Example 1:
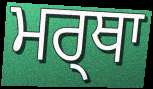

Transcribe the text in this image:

ਮਰ੍ਥਾ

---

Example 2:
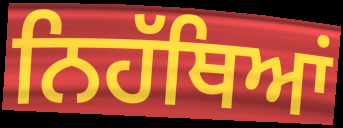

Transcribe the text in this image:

ਨਿਹੱਥਿਆਂ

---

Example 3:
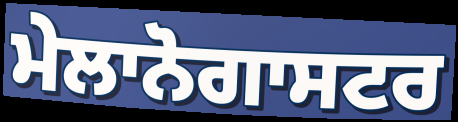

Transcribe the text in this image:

ਮੇਲਾਨੋਗਾਸਟਰ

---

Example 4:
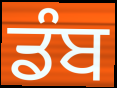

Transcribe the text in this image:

ਡੰਬ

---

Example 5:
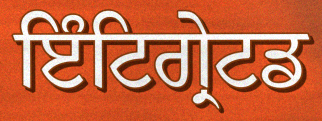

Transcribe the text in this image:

ਇੰਟਿਗ੍ਰੇਟਡ